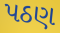
પઠણ